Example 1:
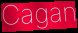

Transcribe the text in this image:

Cagan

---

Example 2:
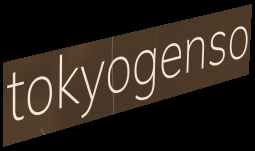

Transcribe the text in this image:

tokyogenso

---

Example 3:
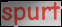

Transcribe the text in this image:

spurt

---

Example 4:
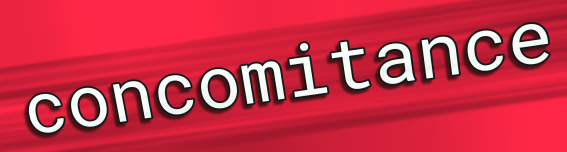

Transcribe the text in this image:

concomitance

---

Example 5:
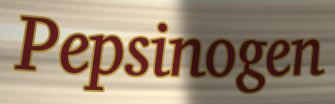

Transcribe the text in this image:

Pepsinogen